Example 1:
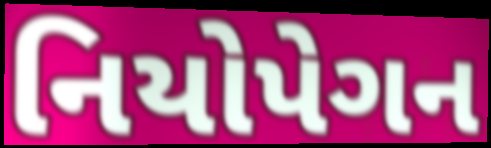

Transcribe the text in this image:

નિયોપેગન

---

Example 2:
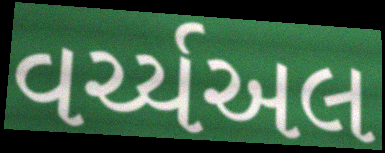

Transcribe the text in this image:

વર્ચ્યઅલ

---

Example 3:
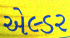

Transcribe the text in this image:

એલ્ડર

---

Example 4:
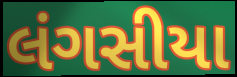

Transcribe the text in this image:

લંગસીયા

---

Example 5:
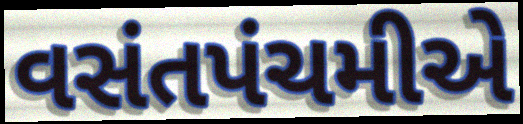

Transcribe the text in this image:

વસંતપંચમીએ